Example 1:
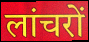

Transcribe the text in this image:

लांचरों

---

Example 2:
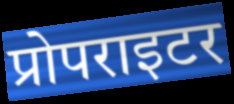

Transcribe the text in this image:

प्रोपराइटर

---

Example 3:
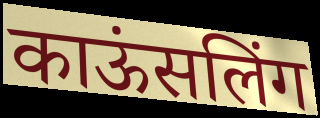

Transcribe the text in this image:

काऊंसलिंग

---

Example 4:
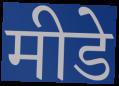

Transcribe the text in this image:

मीडे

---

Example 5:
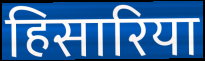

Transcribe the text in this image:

हिसारिया